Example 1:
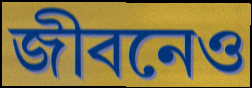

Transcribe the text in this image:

জীবনেও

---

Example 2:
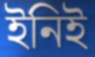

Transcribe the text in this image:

ইনিই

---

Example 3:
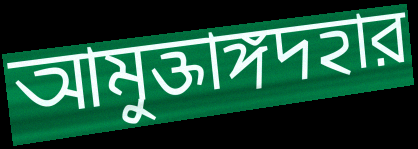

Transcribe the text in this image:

আমুক্তাঙ্গদহার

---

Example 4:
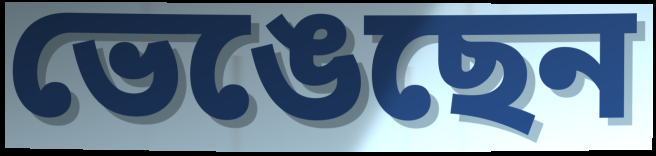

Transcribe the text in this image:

ভেঙেছেন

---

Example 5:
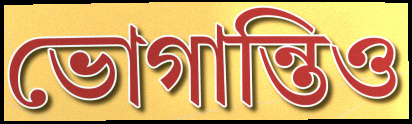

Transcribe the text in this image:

ভোগান্তিও